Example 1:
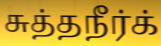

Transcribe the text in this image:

சுத்தநீர்க்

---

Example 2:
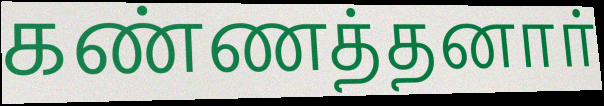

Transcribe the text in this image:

கண்ணத்தனார்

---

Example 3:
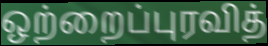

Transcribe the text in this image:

ஒற்றைப்புரவித்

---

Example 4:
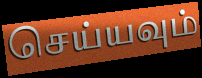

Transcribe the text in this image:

செய்யவும்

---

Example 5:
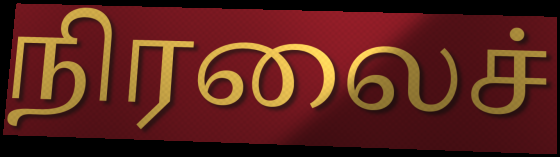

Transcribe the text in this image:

நிரலைச்